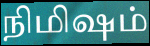
நிமிஷம்